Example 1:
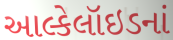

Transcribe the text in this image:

આલ્કેલૉઇડનાં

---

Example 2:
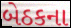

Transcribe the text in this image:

બેઠકના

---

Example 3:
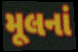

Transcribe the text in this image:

મૂલનાં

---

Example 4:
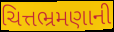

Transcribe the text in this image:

ચિત્તભ્રમણાની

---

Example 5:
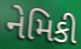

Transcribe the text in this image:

નેમિકી